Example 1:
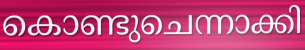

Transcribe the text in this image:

കൊണ്ടുചെന്നാക്കി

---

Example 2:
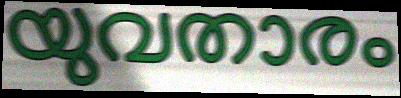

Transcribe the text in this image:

യുവതാരം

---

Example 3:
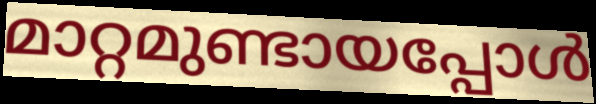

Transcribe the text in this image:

മാറ്റമുണ്ടായപ്പോൾ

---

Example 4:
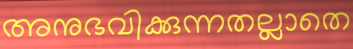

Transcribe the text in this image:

അനുഭവിക്കുന്നതല്ലാതെ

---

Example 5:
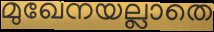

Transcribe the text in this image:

മുഖേനയല്ലാതെ